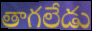
తాగలేడు